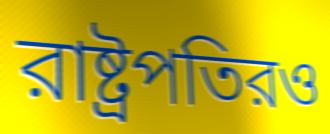
রাষ্ট্রপতিরও